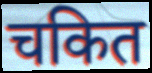
चकित